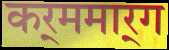
कर्ममार्ग